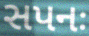
સપનઃ